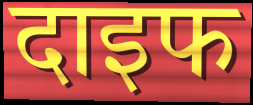
दाइफ